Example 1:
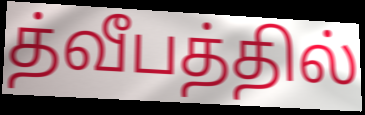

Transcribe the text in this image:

த்வீபத்தில்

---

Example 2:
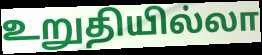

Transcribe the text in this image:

உறுதியில்லா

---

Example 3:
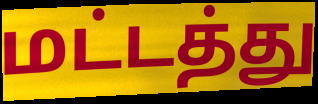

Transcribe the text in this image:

மட்டத்து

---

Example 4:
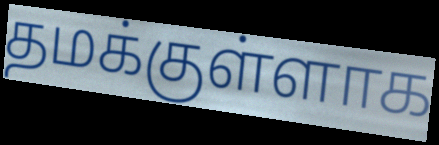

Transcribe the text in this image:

தமக்குள்ளாக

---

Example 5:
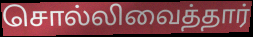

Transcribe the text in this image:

சொல்லிவைத்தார்